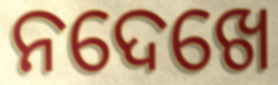
ନଦେଖେ